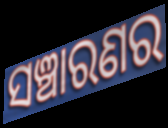
ସଞ୍ଚାରଣର